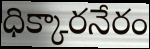
ధిక్కారనేరం